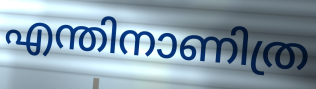
എന്തിനാണിത്ര